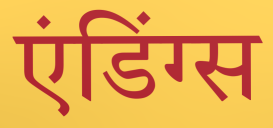
एंडिंग्स